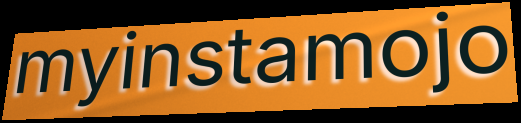
myinstamojo